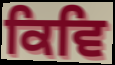
ਕਿਵਿ